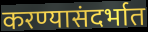
करण्यासंदर्भात